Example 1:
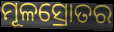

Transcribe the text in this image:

ମୂଳସ୍ରୋତର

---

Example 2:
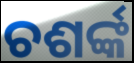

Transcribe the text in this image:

ଚଶର୍ଙ୍କ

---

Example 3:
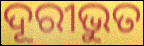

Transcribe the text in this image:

ଦୂରୀଭୁତ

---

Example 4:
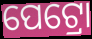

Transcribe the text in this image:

ପେଟ୍ରୋ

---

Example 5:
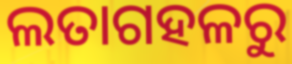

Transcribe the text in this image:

ଲତାଗହଳରୁ